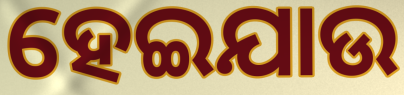
ହେଇଯାଉ